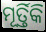
ମୂର୍ତ୍ତିକି